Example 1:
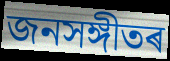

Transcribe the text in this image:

জনসঙ্গীতৰ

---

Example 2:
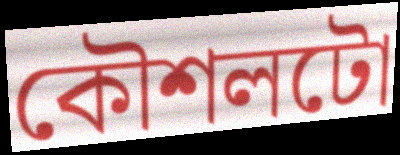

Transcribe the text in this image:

কৌশলটো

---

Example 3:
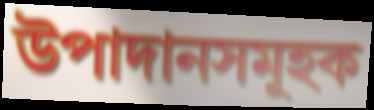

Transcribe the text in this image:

উপাদানসমূহক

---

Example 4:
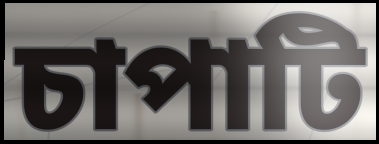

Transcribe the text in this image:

চাপাটি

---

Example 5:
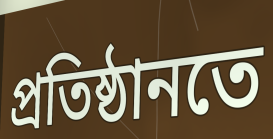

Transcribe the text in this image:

প্ৰতিষ্ঠানতে